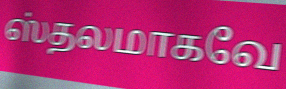
ஸ்தலமாகவே